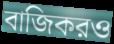
বাজিকরও